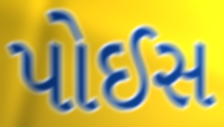
પોઈસ